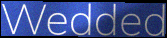
Wedded